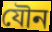
যৌন